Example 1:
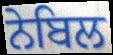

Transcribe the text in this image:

ਨੇਬਿਲ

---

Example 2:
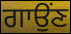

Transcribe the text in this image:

ਗਾਉਂਣ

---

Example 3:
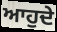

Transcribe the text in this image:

ਆਹੁਦੇ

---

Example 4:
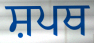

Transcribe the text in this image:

ਸ਼ਪਥ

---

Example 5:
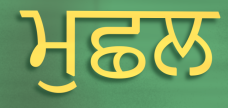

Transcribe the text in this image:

ਮੁਛਲ